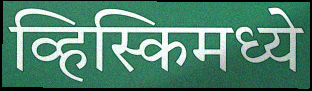
व्हिस्किमध्ये